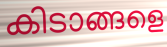
കിടാങ്ങളെ